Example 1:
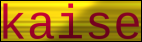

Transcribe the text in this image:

kaise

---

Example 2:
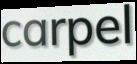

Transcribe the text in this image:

carpel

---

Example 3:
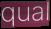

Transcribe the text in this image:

qual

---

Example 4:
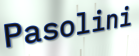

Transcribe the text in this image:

Pasolini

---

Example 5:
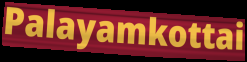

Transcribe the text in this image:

Palayamkottai